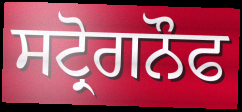
ਸਟ੍ਰੋਗਨੌਫ